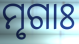
ମୃଗାଃ